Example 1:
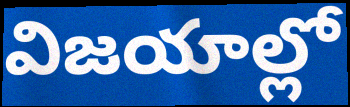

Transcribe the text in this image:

విజయాల్లో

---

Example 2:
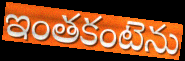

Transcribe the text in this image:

ఇంతకంటెను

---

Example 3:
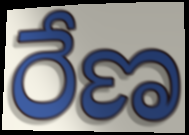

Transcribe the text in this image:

రేణ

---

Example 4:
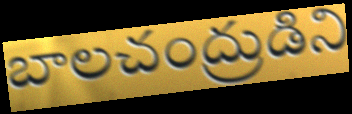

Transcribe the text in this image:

బాలచంద్రుడిని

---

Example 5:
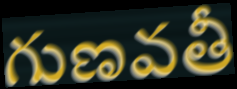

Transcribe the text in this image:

గుణవతీ